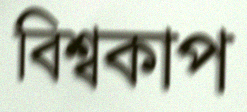
বিশ্বকাপ